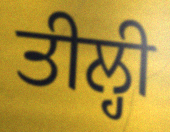
ਤੀਲ੍ਹੀ